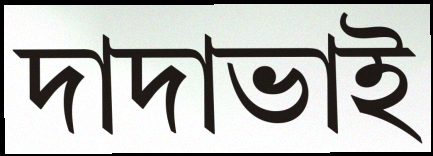
দাদাভাই